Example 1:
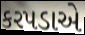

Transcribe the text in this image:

કરપડાએ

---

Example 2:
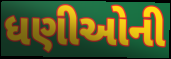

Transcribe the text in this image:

ધણીઓની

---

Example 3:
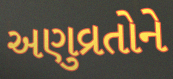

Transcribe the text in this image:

અણુવ્રતોને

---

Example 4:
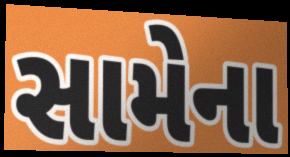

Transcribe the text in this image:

સામેના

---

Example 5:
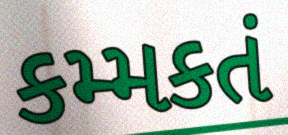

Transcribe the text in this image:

કમ્મકતં